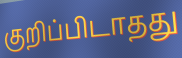
குறிப்பிடாதது